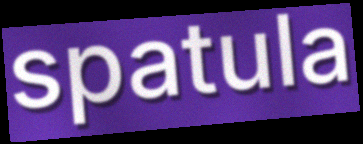
spatula